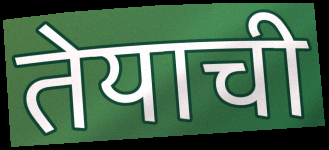
तेयाची